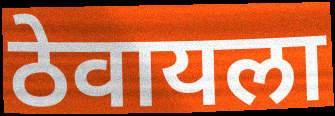
ठेवायला